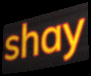
shay